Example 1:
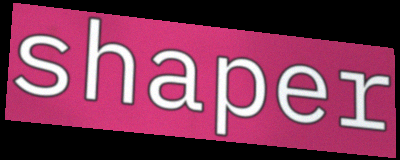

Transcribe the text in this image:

shaper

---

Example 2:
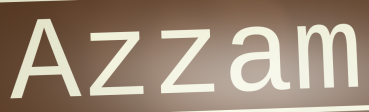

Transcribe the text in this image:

Azzam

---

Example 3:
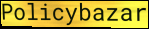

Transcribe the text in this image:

Policybazar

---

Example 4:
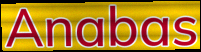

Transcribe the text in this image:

Anabas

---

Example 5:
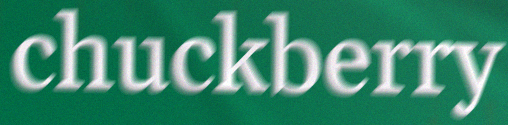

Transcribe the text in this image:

chuckberry